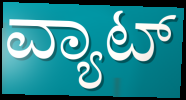
ವ್ಯಾಟ್